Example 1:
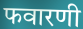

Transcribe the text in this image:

फवारणी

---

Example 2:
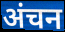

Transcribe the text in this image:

अंचन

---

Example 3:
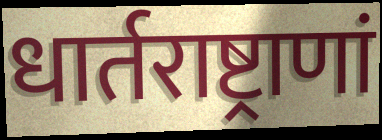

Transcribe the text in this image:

धार्तराष्ट्राणां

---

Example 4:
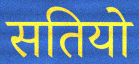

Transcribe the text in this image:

सतियो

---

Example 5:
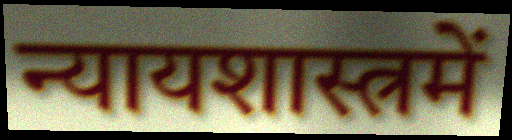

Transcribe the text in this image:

न्यायशास्त्रमें